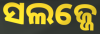
ସଲଜ୍ଜେ